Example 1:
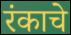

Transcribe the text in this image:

रंकाचे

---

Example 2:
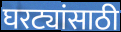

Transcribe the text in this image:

घरट्यांसाठी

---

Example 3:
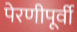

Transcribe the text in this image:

पेरणीपूर्वी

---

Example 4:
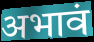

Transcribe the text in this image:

अभावं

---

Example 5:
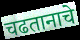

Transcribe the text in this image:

चढतानाचे